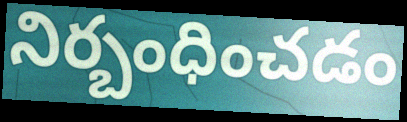
నిర్బంధించడం